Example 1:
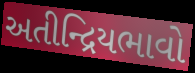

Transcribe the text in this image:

અતીન્દ્રિયભાવો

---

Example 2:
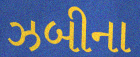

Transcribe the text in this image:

ઝબીના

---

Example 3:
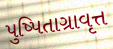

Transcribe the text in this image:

પુષ્પિતાગ્રાવૃત્ત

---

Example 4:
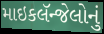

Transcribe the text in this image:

માઇકલૅન્જેલોનું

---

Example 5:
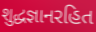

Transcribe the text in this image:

શુદ્ધજ્ઞાનરહિત